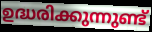
ഉദ്ധരിക്കുന്നുണ്ട്